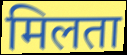
मिलता